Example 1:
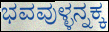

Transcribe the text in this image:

ಭವವುಳ್ಳನ್ನಕ್ಕ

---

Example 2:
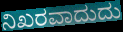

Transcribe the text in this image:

ನಿಖರವಾದುದು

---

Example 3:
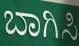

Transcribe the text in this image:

ಬಾಗಿಸಿ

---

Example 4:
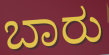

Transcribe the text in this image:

ಬಾರು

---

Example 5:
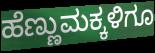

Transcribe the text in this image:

ಹೆಣ್ಣುಮಕ್ಕಳಿಗೂ